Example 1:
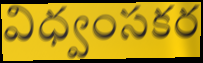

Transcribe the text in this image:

విధ్వంసకర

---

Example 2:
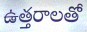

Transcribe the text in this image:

ఉత్తరాలతో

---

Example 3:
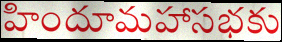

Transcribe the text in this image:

హిందూమహాసభకు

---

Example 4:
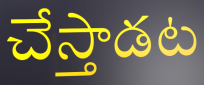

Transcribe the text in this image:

చేస్తాడట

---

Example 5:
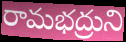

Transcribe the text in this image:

రామభద్రుని